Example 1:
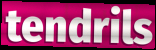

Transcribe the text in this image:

tendrils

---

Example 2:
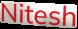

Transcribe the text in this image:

Nitesh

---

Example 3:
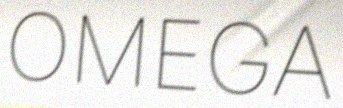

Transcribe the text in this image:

OMEGA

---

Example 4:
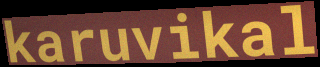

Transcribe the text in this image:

karuvikal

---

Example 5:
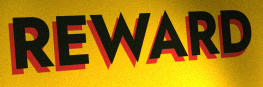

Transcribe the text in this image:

REWARD